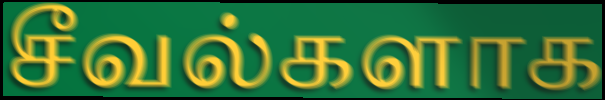
சீவல்களாக